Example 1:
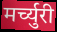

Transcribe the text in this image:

मर्च्युरी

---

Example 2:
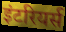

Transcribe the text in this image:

इंटरियर्स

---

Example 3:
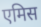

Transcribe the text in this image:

एमिस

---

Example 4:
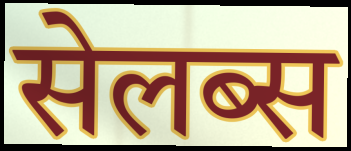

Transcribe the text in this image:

सेलब्स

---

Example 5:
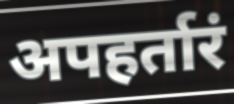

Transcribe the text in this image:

अपहर्तारं